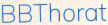
BBThorat